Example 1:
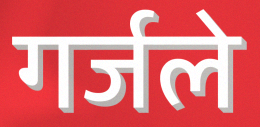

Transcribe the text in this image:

गर्जले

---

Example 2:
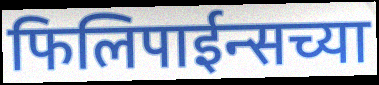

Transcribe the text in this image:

फिलिपाईन्सच्या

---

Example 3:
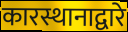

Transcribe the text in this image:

कारस्थानाद्वारे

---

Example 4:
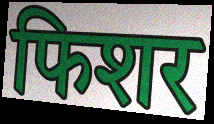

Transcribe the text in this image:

फिशर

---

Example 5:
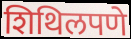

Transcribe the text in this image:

शिथिलपणे